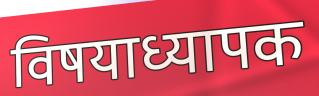
विषयाध्यापक